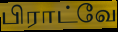
பிராட்வே